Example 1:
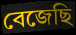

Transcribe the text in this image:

বেজেছি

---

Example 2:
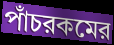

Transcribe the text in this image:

পাঁচরকমের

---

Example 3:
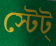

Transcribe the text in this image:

স্টেট্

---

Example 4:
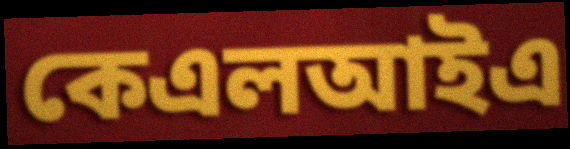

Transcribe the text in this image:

কেএলআইএ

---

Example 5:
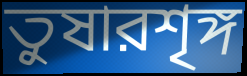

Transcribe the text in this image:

তুষারশৃঙ্গ